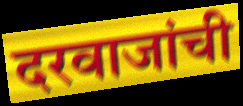
दरवाजांची